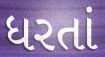
ધરતાં